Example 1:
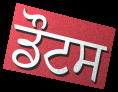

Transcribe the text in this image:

ਡੌਟਸ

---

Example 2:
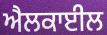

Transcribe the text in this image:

ਐਲਕਾਈਲ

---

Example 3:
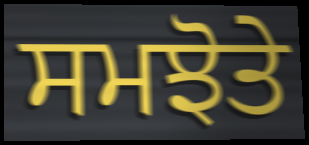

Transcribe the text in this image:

ਸਮਝੋਤੇ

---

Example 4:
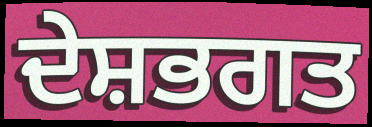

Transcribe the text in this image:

ਦੇਸ਼ਭਗਤ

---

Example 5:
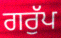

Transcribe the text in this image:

ਗਰੁੱਪ